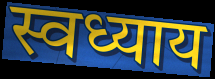
स्वध्याय